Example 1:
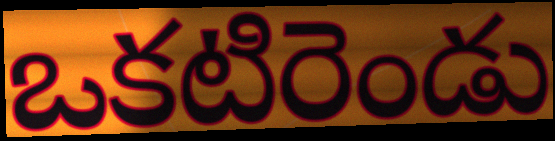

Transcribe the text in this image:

ఒకటిరెండు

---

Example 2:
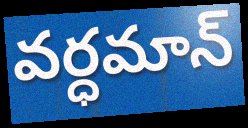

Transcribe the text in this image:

వర్ధమాన్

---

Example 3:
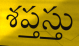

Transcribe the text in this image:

శప్తస్తు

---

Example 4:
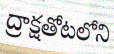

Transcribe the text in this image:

ద్రాక్షతోటలోని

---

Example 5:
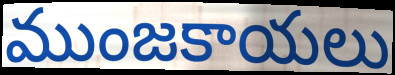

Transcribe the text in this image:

ముంజకాయలు